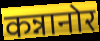
कन्नानोर